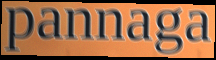
pannaga